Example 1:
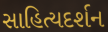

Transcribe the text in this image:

સાહિત્યદર્શન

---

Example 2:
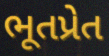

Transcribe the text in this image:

ભૂતપ્રેત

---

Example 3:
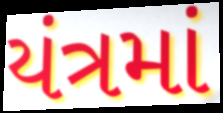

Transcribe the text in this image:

યંત્રમાં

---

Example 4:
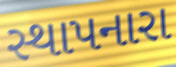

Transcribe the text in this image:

સ્થાપનારા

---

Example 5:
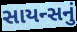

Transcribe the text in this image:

સાયન્સનું